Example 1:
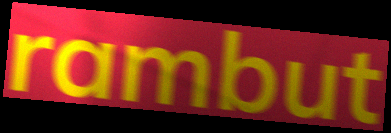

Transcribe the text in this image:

rambut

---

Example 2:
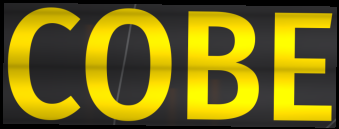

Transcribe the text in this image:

COBE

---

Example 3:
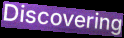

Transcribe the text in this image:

Discovering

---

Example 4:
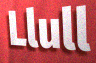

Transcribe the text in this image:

Llull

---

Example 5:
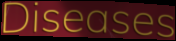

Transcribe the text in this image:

Diseases